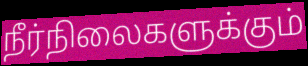
நீர்நிலைகளுக்கும்